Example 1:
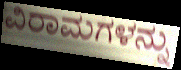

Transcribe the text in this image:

ವಿರಾಮಗಳನ್ನು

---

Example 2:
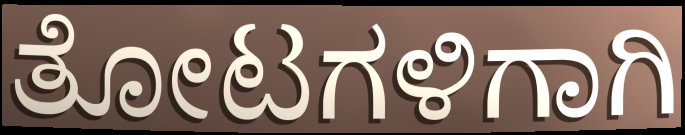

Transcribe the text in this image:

ತೋಟಗಳಿಗಾಗಿ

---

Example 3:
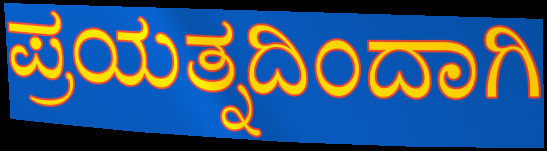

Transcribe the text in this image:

ಪ್ರಯತ್ನದಿಂದಾಗಿ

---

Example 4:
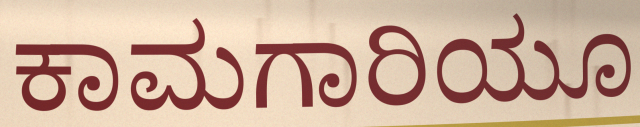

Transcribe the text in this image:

ಕಾಮಗಾರಿಯೂ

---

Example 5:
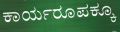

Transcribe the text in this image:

ಕಾರ್ಯರೂಪಕ್ಕೂ